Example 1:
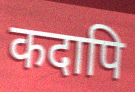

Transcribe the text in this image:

कदापि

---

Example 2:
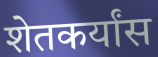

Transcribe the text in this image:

शेतकर्यांस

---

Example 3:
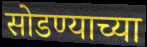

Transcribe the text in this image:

सोडण्याच्या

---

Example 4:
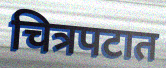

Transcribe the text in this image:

चित्रपटात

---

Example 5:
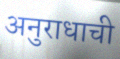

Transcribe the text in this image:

अनुराधाची